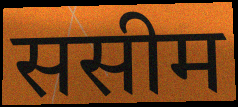
ससीम